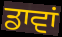
ਡਾਵਾਂ